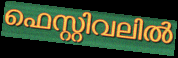
ഫെസ്റ്റിവലിൽ